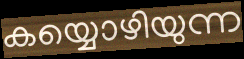
കയ്യൊഴിയുന്ന